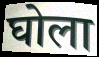
घोला